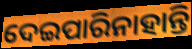
ଦେଇପାରିନାହାନ୍ତି